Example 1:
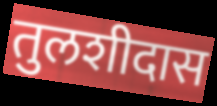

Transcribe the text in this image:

तुलशीदास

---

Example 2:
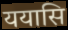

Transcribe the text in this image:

ययासि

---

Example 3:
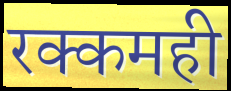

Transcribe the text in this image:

रक्कमही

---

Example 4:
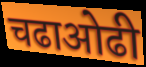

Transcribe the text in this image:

चढाओढी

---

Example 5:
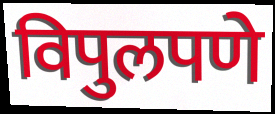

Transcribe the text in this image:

विपुलपणे